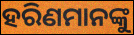
ହରିଣମାନଙ୍କୁ